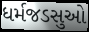
ધર્મજડસુઓ